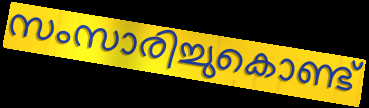
സംസാരിച്ചുകൊണ്ട്